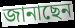
জানাছেন